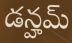
డన్హమ్